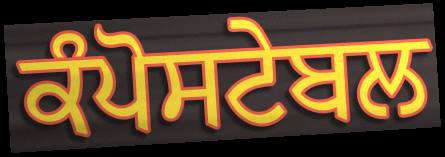
ਕੰਪੋਸਟੇਬਲ